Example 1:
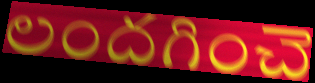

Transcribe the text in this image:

లందగించె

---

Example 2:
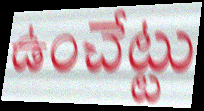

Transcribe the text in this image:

ఉంచేట్టు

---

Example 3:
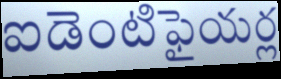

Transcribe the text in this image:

ఐడెంటిఫైయర్ల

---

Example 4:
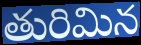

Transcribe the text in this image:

తురిమిన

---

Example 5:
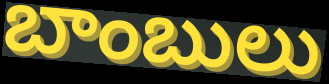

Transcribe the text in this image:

బాంబులు